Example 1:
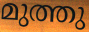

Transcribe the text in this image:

മുത്തു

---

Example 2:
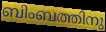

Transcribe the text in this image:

ബിംബത്തിനു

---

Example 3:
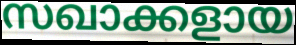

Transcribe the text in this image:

സഖാക്കളായ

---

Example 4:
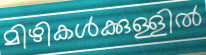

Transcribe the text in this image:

മിഴികൾക്കുള്ളിൽ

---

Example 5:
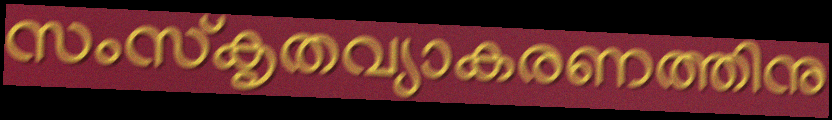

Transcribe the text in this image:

സംസ്കൃതവ്യാകരണത്തിനു